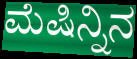
ಮೆಷಿನ್ನಿನ